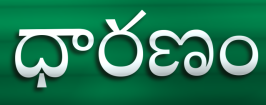
ధారణం